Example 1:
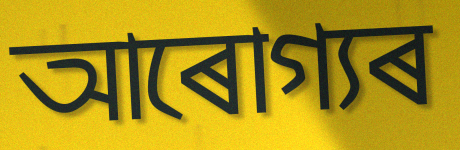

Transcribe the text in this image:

আৰোগ্যৰ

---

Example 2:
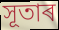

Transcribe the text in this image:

সূতাৰ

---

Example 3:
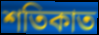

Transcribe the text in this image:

শতিকাত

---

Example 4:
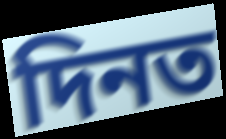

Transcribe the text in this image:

দিনত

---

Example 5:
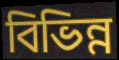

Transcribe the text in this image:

বিভিন্ন